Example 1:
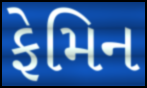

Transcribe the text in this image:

ફેમિન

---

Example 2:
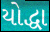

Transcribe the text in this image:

યોદ્ધા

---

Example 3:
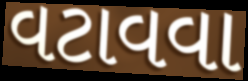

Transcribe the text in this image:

વટાવવા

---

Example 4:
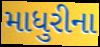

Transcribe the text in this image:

માધુરીના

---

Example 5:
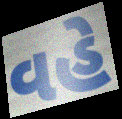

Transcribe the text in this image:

વહે